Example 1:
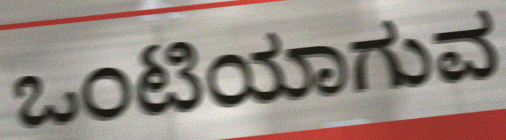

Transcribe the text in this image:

ಒಂಟಿಯಾಗುವ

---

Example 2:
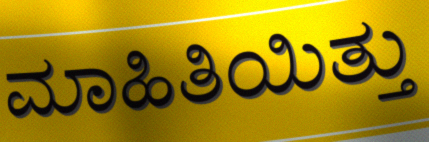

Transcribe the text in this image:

ಮಾಹಿತಿಯಿತ್ತು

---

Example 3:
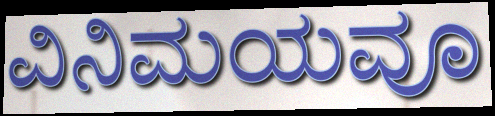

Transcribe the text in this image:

ವಿನಿಮಯವೂ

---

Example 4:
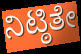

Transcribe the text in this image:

ನಿಟ್ಠಿತೇ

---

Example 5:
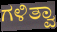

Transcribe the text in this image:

ಗಳಿತ್ವಾ